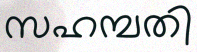
സഹമ്പതി